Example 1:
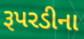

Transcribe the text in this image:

રૂપરડીના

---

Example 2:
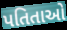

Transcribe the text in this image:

પતિતાઓ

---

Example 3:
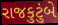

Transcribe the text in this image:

રાજકુટુંબે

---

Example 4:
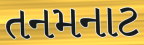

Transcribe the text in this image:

તનમનાટ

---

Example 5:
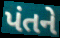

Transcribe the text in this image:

પંતને